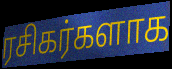
ரசிகர்களாக